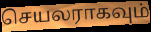
செயலராகவும்